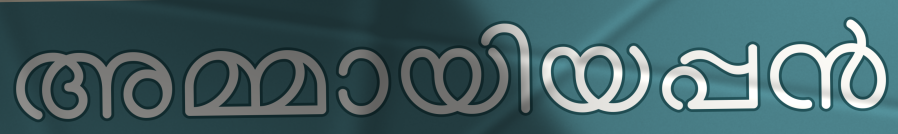
അമ്മായിയപ്പൻ